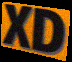
XD